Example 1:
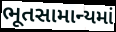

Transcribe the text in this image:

ભૂતસામાન્યમાં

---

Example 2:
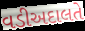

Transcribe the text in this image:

વડીઅદાલતે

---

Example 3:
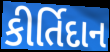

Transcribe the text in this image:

કીર્તિદાન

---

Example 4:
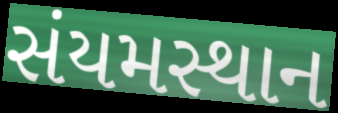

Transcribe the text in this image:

સંયમસ્થાન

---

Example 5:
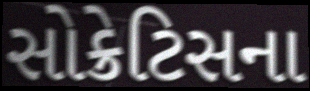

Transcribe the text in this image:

સોક્રેટિસના